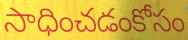
సాధించడంకోసం